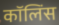
कॉलिंस